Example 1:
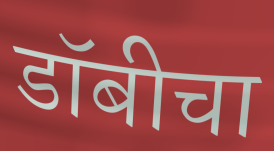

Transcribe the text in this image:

डॉबीचा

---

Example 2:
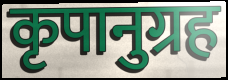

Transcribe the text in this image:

कृपानुग्रह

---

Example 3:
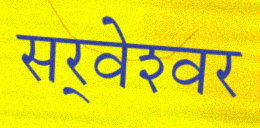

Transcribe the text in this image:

सर्वेश्वर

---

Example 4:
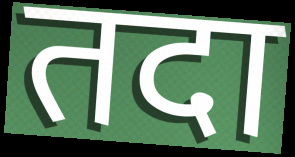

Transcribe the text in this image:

तदा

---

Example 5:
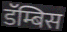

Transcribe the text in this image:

डॅम्बिस